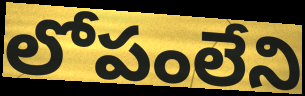
లోపంలేని